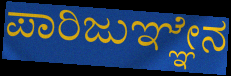
ಪಾರಿಜುಞ್ಞೇನ